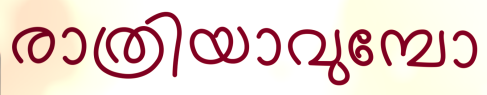
രാത്രിയാവുമ്പോ